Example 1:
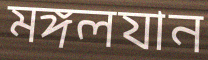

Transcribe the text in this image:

মঙ্গলযান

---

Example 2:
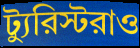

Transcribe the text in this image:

ট্যুরিস্টরাও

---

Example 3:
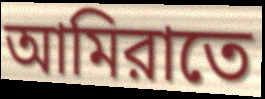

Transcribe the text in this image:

আমিরাতে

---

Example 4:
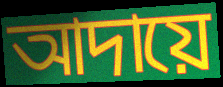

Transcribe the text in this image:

আদায়ে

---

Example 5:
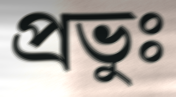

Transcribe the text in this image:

প্রভুঃ